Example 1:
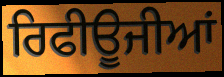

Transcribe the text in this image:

ਰਿਫੀਊਜੀਆਂ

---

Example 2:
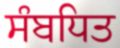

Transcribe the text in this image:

ਸੰਬਧਿਤ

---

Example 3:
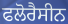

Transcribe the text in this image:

ਫਲੋਰੈਸੀਨ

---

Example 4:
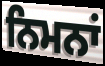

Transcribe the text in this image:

ਨਿਮਨਾਂ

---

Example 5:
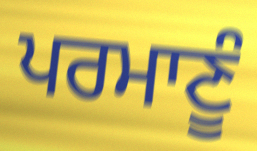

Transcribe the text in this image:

ਪਰਮਾਣੂੰ